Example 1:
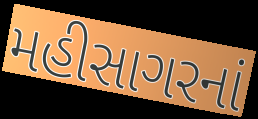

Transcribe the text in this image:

મહીસાગરનાં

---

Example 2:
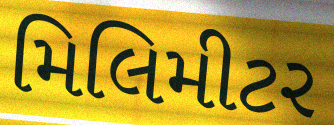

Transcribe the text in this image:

મિલિમીટર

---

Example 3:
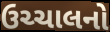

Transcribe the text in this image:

ઉચ્ચાલનો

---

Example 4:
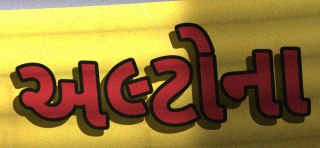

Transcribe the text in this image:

અલ્ટોના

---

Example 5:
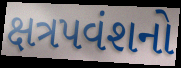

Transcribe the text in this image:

ક્ષત્રપવંશનો